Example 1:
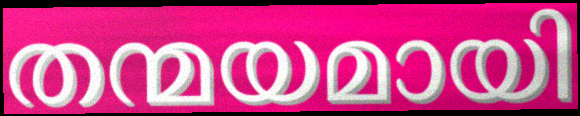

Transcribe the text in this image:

തന്മയമായി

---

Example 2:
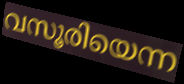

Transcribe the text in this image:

വസൂരിയെന്ന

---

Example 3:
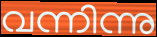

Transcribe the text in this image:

വന്നിന്നു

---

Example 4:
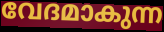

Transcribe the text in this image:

വേദമാകുന്ന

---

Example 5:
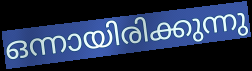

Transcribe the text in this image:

ഒന്നായിരിക്കുന്നു